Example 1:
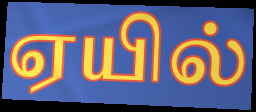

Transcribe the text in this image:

ஏயில்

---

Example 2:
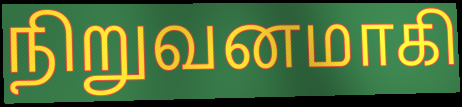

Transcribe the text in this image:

நிறுவனமாகி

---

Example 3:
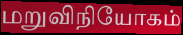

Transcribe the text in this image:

மறுவிநியோகம்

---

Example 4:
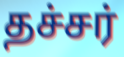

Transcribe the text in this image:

தச்சர்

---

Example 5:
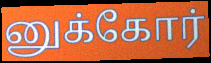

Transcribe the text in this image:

னுக்கோர்